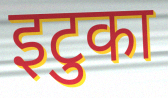
इटुका